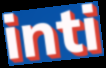
inti